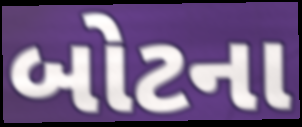
બોટના